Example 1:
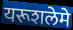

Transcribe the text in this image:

यरूशलेमे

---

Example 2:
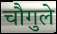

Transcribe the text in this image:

चौगुले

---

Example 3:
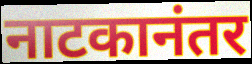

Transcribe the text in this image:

नाटकानंतर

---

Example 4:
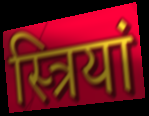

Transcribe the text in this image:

स्त्रियां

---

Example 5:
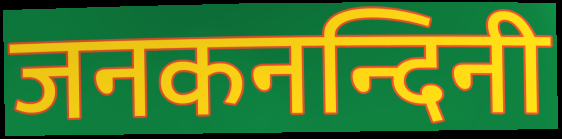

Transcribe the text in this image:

जनकनन्दिनी